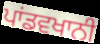
ਪਾਂਡਵਖਾਨੀ